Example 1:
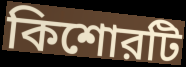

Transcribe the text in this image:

কিশোরটি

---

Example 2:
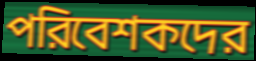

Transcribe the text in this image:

পরিবেশকদের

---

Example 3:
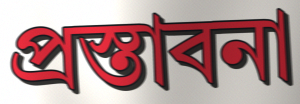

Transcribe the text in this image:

প্রস্তাবনা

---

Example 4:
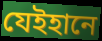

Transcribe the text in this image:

যেইহানে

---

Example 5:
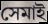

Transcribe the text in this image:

সেমাই